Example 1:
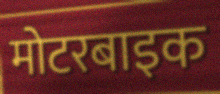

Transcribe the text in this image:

मोटरबाइक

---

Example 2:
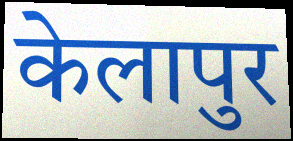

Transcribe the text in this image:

केलापुर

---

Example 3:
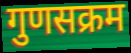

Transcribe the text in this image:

गुणसक्रम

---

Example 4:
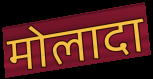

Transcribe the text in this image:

मोलादा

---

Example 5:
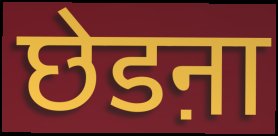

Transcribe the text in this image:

छेडऩा